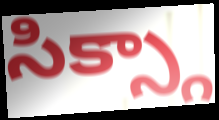
సిక్స్గా